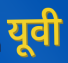
यूवी